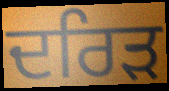
ਦਰਿੜ